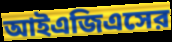
আইএজিএসের